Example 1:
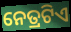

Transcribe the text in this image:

ନେତ୍ରଟିଏ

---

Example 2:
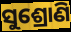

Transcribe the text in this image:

ସୁଶ୍ରୋଣି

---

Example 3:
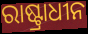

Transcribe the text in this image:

ରାଷ୍ଟ୍ରାଧୀନ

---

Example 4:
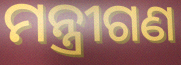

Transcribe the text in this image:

ମନ୍ତ୍ରୀଗଣ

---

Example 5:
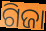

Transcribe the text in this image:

ଗିଜା